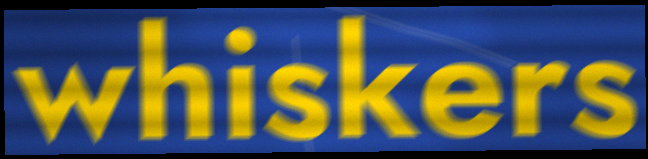
whiskers